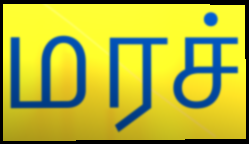
மரச்